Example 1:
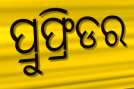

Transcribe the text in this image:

ପ୍ରୁଫ୍ରିଡର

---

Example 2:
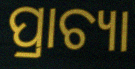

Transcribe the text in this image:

ପ୍ରାଚ୍ୟା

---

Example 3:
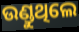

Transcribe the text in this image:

ଉଣ୍ଡୁଥିଲେ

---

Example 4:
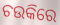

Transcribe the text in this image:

ଚଉକିରେ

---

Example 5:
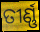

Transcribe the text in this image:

ତୀର୍ଣ୍ଣ